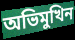
অভিমুখিন